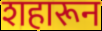
शहारून